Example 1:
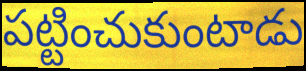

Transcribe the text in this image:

పట్టించుకుంటాడు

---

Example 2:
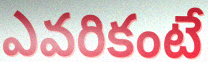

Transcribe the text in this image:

ఎవరికంటే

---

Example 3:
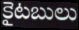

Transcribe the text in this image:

కైటబులు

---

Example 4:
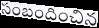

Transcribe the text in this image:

సంబందించిన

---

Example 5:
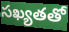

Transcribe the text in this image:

సఖ్యతతో